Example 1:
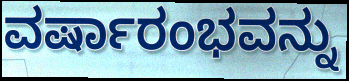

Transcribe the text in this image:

ವರ್ಷಾರಂಭವನ್ನು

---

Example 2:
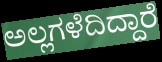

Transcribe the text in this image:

ಅಲ್ಲಗಳೆದಿದ್ದಾರೆ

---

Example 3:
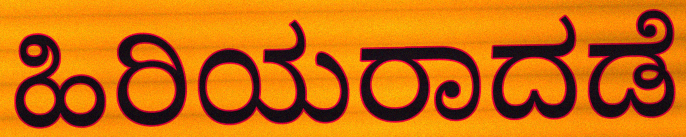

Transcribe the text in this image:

ಹಿರಿಯರಾದಡೆ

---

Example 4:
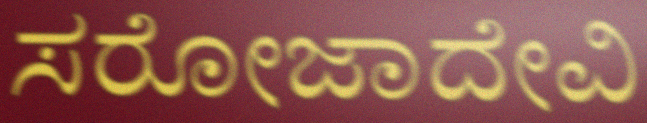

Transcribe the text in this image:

ಸರೋಜಾದೇವಿ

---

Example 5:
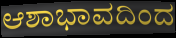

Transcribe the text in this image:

ಆಶಾಭಾವದಿಂದ